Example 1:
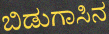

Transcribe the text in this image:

ಬಿಡುಗಾಸಿನ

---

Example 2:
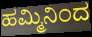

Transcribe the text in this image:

ಹಮ್ಮಿನಿಂದ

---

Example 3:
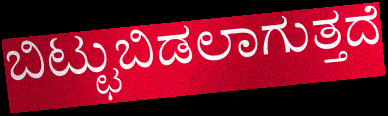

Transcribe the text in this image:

ಬಿಟ್ಟುಬಿಡಲಾಗುತ್ತದೆ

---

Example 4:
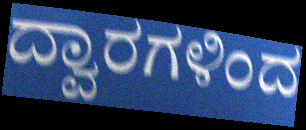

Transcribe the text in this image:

ದ್ವಾರಗಳಿಂದ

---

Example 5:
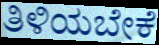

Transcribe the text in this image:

ತಿಳಿಯಬೇಕೆ